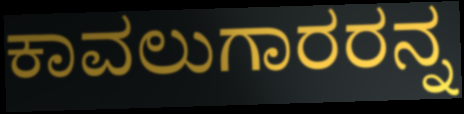
ಕಾವಲುಗಾರರನ್ನ